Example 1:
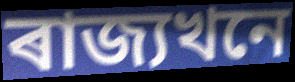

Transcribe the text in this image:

ৰাজ্যখনে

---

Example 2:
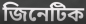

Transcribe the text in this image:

জিনেটিক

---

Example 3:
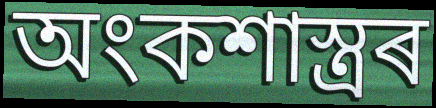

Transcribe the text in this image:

অংকশাস্ত্ৰৰ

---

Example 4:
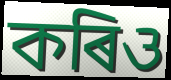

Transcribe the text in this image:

কৰিও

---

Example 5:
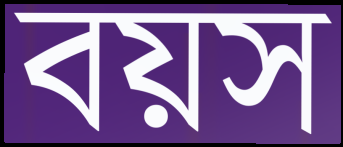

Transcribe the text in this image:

বয়স